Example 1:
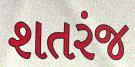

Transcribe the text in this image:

શતરંજ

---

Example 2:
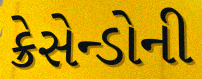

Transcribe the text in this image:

ક્રેસેન્ડોની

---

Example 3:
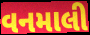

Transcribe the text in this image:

વનમાલી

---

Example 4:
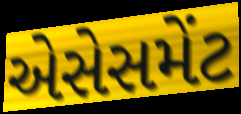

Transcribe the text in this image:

એસેસમેંટ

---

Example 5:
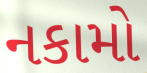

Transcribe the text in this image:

નકામો